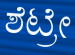
ಶೆಟ್ರೇ